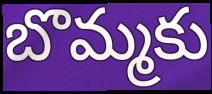
బొమ్మకు